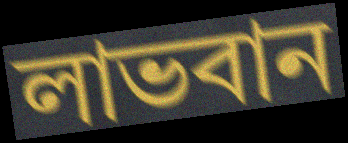
লাভবান